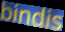
bindis